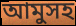
আমুসহ